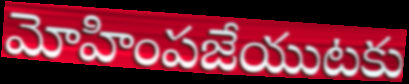
మోహింపజేయుటకు